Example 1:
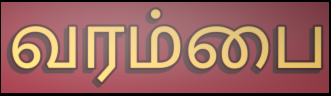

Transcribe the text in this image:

வரம்பை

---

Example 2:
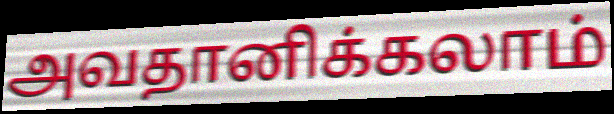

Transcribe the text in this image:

அவதானிக்கலாம்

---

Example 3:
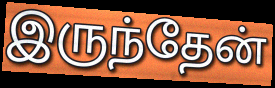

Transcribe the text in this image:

இருந்தேன்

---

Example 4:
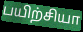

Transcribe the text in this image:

பயிற்சியா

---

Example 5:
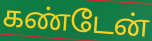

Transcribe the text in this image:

கண்டேன்